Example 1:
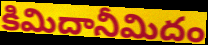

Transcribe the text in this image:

కిమిదానీమిదం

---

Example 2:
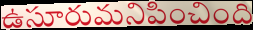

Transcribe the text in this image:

ఉసూరుమనిపించింది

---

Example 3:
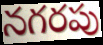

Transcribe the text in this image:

నగరపు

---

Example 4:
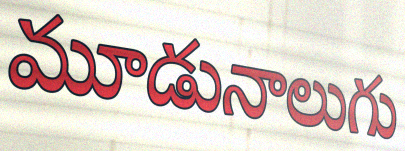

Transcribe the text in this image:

మూడునాలుగు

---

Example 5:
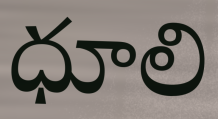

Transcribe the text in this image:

ధూలి